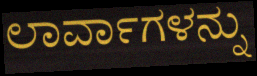
ಲಾರ್ವಾಗಳನ್ನು